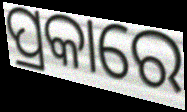
ପ୍ରକାରେ